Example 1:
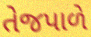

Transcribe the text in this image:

તેજપાળે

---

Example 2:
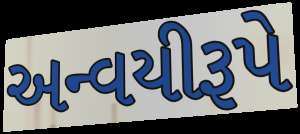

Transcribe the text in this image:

અન્વયીરૂપે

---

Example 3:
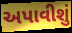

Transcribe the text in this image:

અપાવીશું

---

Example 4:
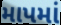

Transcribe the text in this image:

માપમાં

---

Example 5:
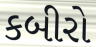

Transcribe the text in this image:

કબીરો